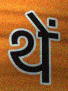
थें